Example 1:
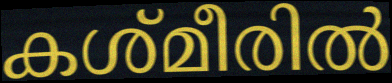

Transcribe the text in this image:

കശ്മീരിൽ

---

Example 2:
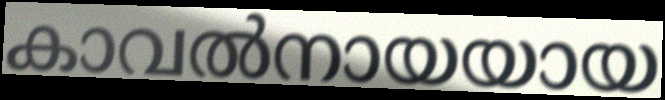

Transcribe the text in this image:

കാവൽനായയായ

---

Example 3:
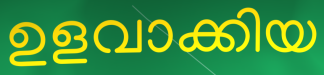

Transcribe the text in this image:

ഉളവാക്കിയ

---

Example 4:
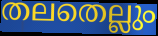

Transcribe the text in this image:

തലതെല്ലും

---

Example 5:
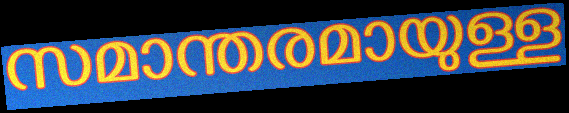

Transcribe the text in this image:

സമാന്തരമായുള്ള